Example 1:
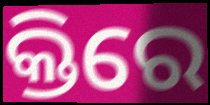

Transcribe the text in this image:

କ୍ତିରେ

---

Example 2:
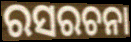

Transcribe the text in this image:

ରସରଚନା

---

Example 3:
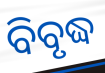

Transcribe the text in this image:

ବିବୃଦ୍ଧ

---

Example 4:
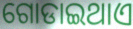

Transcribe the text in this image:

ଗୋଡାଇଥାଏ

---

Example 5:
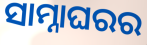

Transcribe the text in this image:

ସାମ୍ନାଘରର